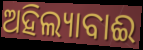
ଅହିଲ୍ୟାବାଈ